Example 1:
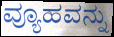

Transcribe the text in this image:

ವ್ಯೂಹವನ್ನು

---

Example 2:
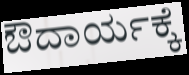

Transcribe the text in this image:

ಔದಾರ್ಯಕ್ಕೆ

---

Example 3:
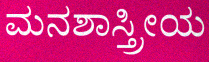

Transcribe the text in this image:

ಮನಶಾಸ್ತ್ರೀಯ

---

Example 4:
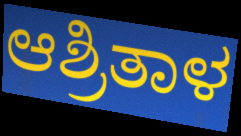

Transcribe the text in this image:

ಆಶ್ರಿತಾಳ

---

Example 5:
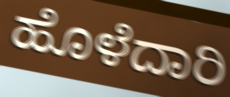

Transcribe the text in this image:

ಹೊಳೆದಾರಿ